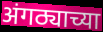
अंगठ्याच्या